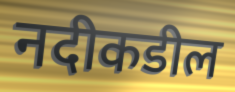
नदीकडील